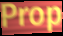
Prop